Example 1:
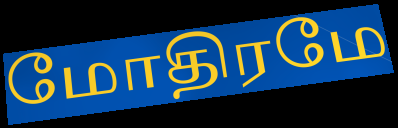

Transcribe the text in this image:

மோதிரமே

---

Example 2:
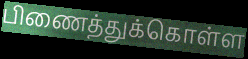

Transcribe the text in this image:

பிணைத்துக்கொள்ள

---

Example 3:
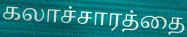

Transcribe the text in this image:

கலாச்சாரத்தை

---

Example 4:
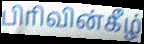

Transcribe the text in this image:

பிரிவின்கீழ்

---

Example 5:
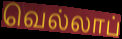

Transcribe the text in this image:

வெல்லாப்